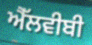
ਐੱਲਵੀਬੀ